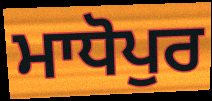
ਮਾਧੋਪੁਰ